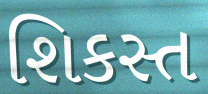
શિકસ્ત